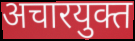
अचारयुक्त